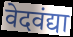
वेदवंद्या